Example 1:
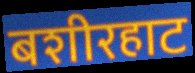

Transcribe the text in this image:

बशीरहाट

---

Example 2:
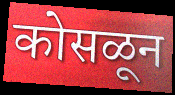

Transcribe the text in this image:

कोसळून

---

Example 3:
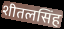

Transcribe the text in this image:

शीतलसिंह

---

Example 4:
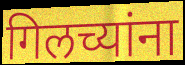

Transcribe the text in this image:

गिलच्यांना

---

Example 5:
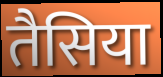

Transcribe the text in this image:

तैसिया